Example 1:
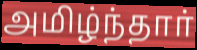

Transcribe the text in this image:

அமிழ்ந்தார்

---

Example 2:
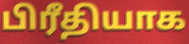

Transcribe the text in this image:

பிரீதியாக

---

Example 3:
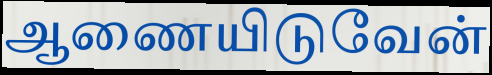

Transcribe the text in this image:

ஆணையிடுவேன்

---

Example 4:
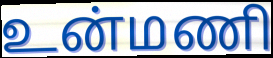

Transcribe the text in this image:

உன்மணி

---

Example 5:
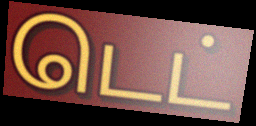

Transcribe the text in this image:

டெட்